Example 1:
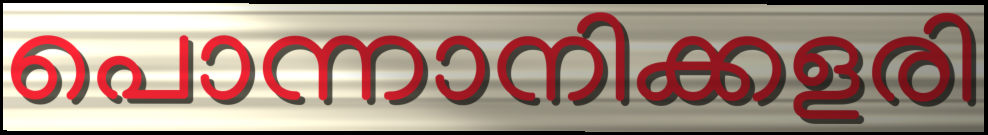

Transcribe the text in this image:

പൊന്നാനിക്കളരി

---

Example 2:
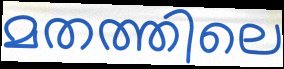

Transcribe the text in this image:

മതത്തിലെ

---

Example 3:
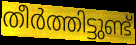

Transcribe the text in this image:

തീർത്തിട്ടുണ്ട്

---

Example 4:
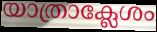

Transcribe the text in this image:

യാത്രാക്ലേശം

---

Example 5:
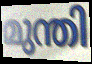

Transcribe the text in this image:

മുന്തി